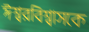
ঈশ্বরবিশ্বাসকে